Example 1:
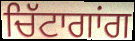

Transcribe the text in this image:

ਚਿੱਟਾਗਾਂਗ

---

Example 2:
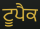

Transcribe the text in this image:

ਟੂਪੈਕ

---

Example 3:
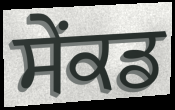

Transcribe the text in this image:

ਸੇਂਕਡ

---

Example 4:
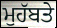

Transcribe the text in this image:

ਮੁਹੱਬਤੇ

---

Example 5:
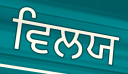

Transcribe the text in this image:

ਵਿਲਯ